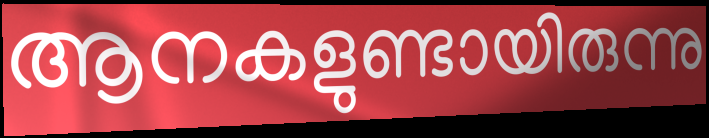
ആനകളുണ്ടായിരുന്നു